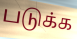
படுக்க